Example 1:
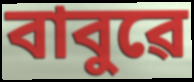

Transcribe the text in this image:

বাবুৱে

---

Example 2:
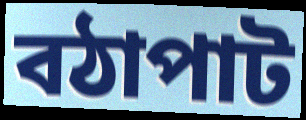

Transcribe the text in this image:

বঠাপাট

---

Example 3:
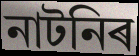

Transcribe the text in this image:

নাটনিৰ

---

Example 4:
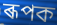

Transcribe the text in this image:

ৰূপক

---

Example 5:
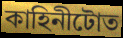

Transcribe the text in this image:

কাহিনীটোত